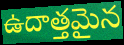
ఉదాత్తమైన